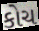
કોચ